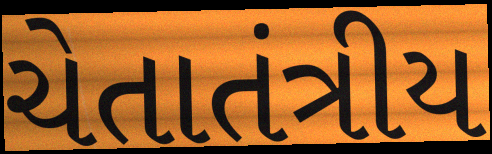
ચેતાતંત્રીય